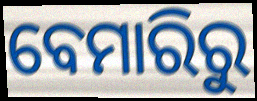
ବେମାରିରୁ